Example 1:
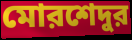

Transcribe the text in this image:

মোরশেদুর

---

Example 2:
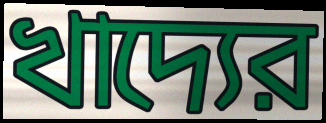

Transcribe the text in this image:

খাদ্যের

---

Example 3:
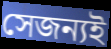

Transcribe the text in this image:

সেজন্যই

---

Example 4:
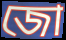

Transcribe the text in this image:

জো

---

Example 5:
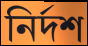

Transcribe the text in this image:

নির্দশ